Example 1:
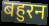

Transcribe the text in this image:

बहुरन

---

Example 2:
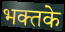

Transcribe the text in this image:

भक्तके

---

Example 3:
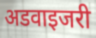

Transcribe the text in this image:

अडवाइजरी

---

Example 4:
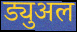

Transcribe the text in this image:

ड्युअल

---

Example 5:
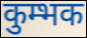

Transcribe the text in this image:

कुम्भक